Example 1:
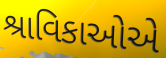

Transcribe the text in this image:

શ્રાવિકાઓએ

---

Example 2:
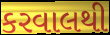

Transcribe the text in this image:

કરવાલથી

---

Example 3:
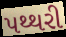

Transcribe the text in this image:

પથ્થરી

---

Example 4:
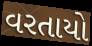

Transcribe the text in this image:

વરતાયો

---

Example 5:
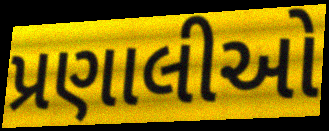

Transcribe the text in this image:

પ્રણાલીઓ